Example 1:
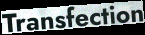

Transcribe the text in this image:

Transfection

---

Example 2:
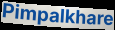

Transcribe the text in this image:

Pimpalkhare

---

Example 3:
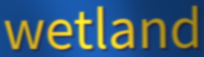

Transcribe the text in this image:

wetland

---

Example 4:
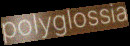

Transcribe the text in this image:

polyglossia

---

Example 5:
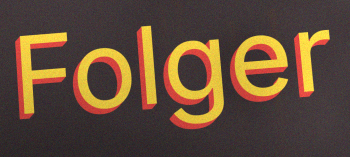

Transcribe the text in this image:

Folger